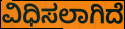
ವಿಧಿಸಲಾಗಿದೆ